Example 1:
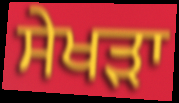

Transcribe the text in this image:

ਸੇਖੜਾ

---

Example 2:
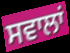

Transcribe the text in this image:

ਸਵਾਲਾਂ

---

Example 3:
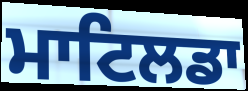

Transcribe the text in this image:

ਮਾਟਿਲਡਾ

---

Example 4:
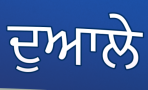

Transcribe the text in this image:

ਦੁਆਲੇ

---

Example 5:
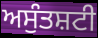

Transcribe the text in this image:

ਅਸੁੰਤਸ਼ਟੀ